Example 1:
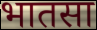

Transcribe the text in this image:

भातसा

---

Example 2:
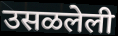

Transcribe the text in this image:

उसळलेली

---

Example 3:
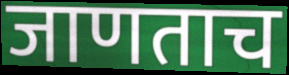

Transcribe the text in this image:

जाणताच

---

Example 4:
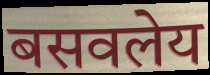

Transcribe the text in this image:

बसवलेय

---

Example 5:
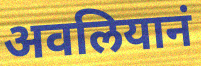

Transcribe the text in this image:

अवलियानं